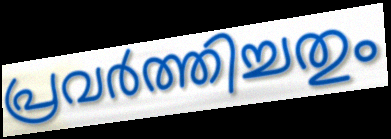
പ്രവർത്തിച്ചതും